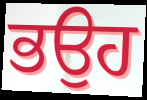
ਭਉਹ